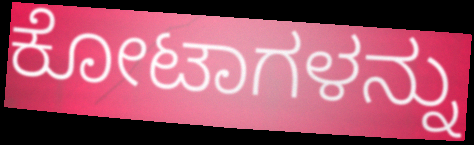
ಕೋಟಾಗಳನ್ನು